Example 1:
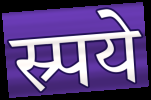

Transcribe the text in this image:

स्र्पये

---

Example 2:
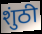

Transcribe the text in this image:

शुंठी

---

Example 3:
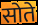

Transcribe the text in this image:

सोते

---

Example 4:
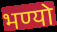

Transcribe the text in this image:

भण्यो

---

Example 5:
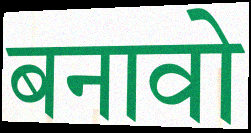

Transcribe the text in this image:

बनावो